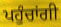
ਪਹੁੰਚਾਂਗੀ